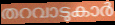
തറവാടുകാർ